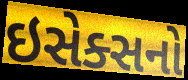
ઇસેક્સનો